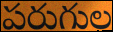
పరుగుల